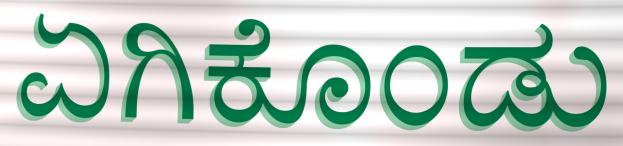
ಏಗಿಕೊಂಡು